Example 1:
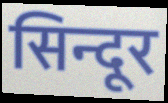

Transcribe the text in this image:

सिन्दूर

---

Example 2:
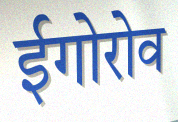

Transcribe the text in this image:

ईगोरोव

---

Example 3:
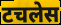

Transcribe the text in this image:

टचलेस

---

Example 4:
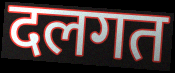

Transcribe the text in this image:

दलगत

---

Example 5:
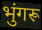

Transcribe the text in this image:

भुंगरू